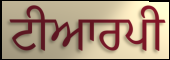
ਟੀਆਰਪੀ